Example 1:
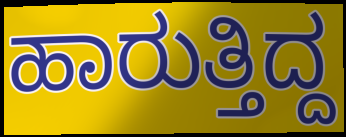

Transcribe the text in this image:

ಹಾರುತ್ತಿದ್ದ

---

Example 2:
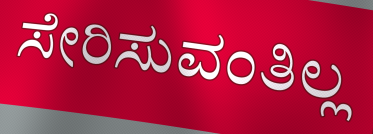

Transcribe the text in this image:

ಸೇರಿಸುವಂತಿಲ್ಲ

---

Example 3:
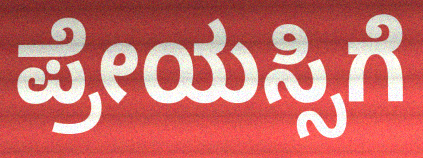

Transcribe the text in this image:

ಪ್ರೇಯಸ್ಸಿಗೆ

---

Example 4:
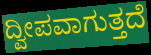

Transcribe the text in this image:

ದ್ವೀಪವಾಗುತ್ತದೆ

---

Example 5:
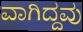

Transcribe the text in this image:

ವಾಗಿದ್ದವು